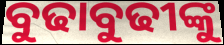
ବୁଢାବୁଢୀଙ୍କୁ